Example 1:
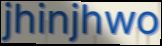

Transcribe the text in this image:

jhinjhwo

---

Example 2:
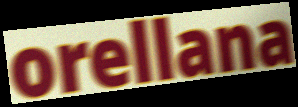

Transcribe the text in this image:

orellana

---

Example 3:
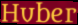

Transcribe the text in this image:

Huber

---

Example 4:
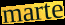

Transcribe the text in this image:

marte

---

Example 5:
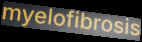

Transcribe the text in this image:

myelofibrosis